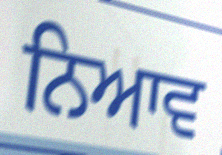
ਨਿਆਵ